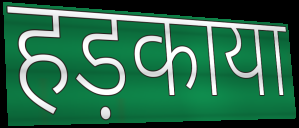
हड़काया